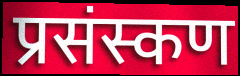
प्रसंस्कण